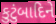
કુટુંબાદિને